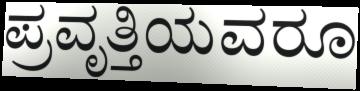
ಪ್ರವೃತ್ತಿಯವರೂ